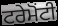
ਟਰੇਮੋਂਟੀ